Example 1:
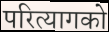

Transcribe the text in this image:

परित्यागको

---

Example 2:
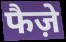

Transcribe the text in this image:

फैज़े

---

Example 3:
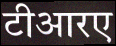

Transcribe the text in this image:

टीआरए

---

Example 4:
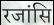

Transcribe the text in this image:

रजांसि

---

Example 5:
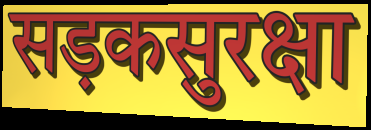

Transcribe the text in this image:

सड़कसुरक्षा